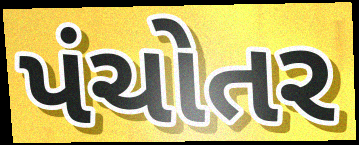
પંચોતર